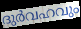
ദുർവഹവും